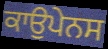
ਕਾਉਪੇਨਸ